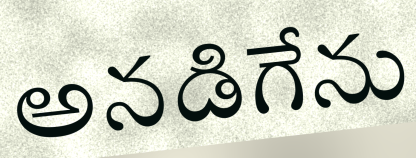
అనడిగేను